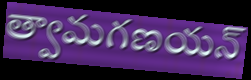
త్వామగణయన్